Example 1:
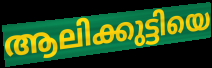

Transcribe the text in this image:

ആലിക്കുട്ടിയെ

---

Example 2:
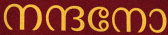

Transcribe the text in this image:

നന്ദനോ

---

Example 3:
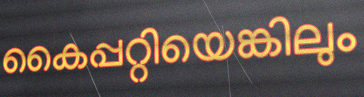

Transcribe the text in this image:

കൈപ്പറ്റിയെങ്കിലും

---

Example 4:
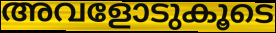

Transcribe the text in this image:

അവളോടുകൂടെ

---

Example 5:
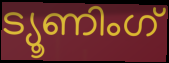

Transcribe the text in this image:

ട്യൂണിംഗ്